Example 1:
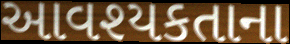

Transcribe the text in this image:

આવશ્યકતાના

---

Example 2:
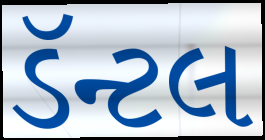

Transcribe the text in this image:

ડૅન્ટલ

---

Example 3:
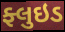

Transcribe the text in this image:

ફ્લુઇડ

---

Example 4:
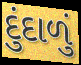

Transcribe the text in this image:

દુંદાળું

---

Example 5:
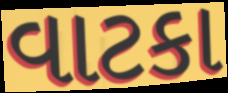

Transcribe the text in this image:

વાટકા